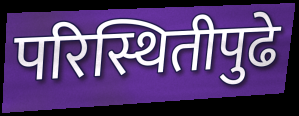
परिस्थितीपुढे